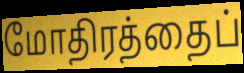
மோதிரத்தைப்